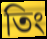
তিং